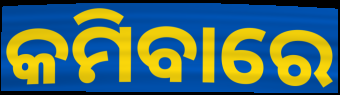
କମିବାରେ